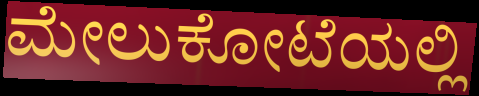
ಮೇಲುಕೋಟೆಯಲ್ಲಿ